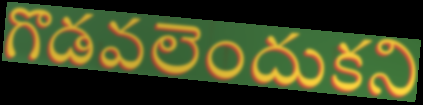
గొడవలెందుకని